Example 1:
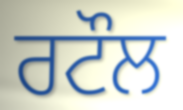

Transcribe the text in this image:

ਰਟੌਲ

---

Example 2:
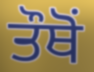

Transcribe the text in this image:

ਤੌਥੋਂ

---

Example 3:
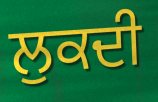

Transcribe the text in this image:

ਲੁਕਦੀ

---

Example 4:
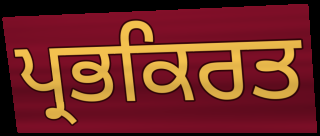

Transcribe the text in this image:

ਪ੍ਰਭਕਿਰਤ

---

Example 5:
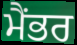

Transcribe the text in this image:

ਮੈਂਭਰ